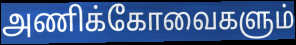
அணிக்கோவைகளும்